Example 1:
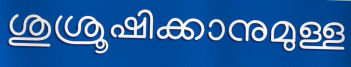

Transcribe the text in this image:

ശുശ്രൂഷിക്കാനുമുള്ള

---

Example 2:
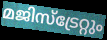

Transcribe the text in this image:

മജിസ്ട്രേറ്റും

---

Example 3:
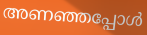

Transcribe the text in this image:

അണഞ്ഞപ്പോൾ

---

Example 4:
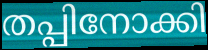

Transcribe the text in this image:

തപ്പിനോക്കി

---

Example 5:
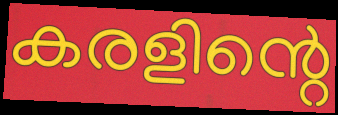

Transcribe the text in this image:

കരളിന്റെ